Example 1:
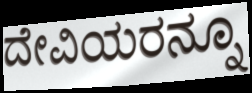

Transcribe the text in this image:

ದೇವಿಯರನ್ನೂ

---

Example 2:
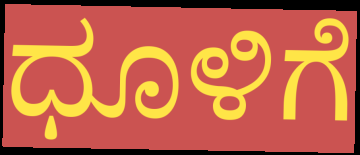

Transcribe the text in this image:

ಧೂಳಿಗೆ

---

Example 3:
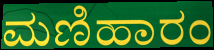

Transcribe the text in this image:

ಮಣಿಹಾರಂ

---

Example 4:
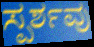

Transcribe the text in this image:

ಸ್ಪರ್ಶವು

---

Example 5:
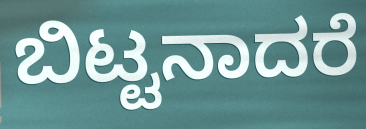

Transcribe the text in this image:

ಬಿಟ್ಟನಾದರೆ